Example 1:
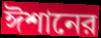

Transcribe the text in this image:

ঈশানের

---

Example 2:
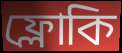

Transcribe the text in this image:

ফ্লোকি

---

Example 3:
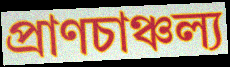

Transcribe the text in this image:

প্রাণচাঞ্চল্য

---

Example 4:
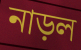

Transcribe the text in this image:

নাড়ল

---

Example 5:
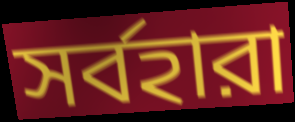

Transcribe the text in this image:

সর্বহারা